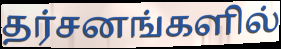
தர்சனங்களில்